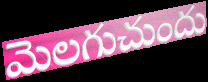
మెలగుచుందు